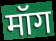
मॉग